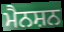
ਮੈਨਸ਼ਨ